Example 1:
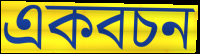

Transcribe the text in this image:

একবচন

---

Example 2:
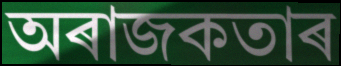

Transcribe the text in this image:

অৰাজকতাৰ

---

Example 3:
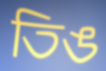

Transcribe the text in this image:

তিঙ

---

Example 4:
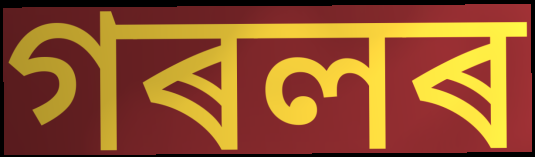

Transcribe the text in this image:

গৰলৰ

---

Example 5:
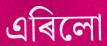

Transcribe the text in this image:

এৰিলো